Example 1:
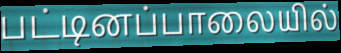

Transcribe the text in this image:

பட்டினப்பாலையில்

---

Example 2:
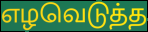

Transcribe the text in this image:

எழவெடுத்த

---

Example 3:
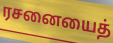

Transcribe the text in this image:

ரசனையைத்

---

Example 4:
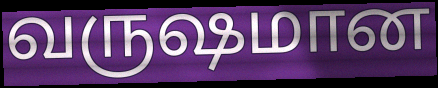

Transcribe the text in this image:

வருஷமான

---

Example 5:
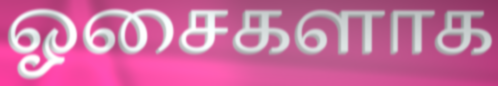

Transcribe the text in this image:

ஓசைகளாக